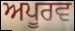
ਅਪੂਰਵ